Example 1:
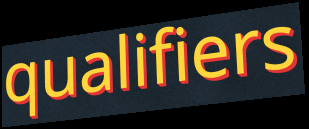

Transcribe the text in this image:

qualifiers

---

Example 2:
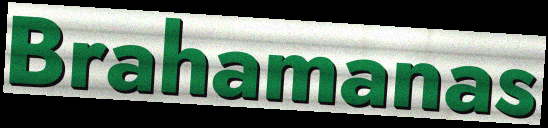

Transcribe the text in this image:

Brahamanas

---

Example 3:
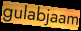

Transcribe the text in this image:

gulabjaam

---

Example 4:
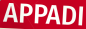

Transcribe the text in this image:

APPADI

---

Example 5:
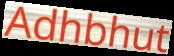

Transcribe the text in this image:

Adhbhut